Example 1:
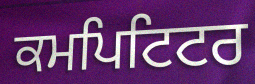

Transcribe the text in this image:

ਕਮਪਿਟਿਟਰ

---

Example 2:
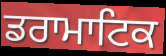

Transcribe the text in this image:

ਡਰਾਮਾਟਿਕ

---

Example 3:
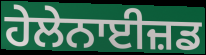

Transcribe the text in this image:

ਹੇਲੇਨਾਈਜ਼ਡ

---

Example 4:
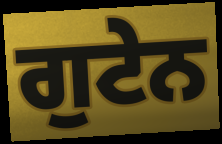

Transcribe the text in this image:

ਗੁਟੇਨ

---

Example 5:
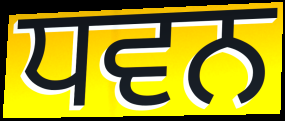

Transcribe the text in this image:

ਧਵਨ